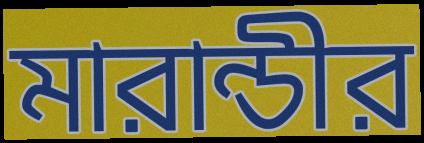
মারান্ডীর